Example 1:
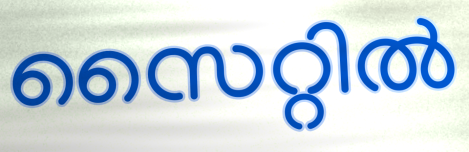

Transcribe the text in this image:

സൈറ്റിൽ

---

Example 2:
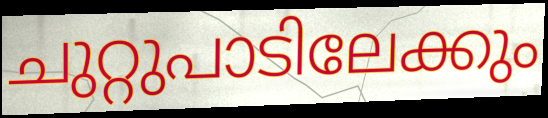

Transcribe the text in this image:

ചുറ്റുപാടിലേക്കും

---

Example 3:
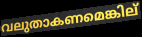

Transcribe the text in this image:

വലുതാകണമെങ്കില്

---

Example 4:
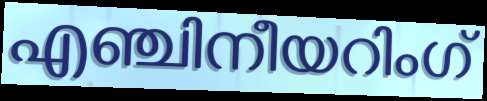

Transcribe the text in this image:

എഞ്ചിനീയറിംഗ്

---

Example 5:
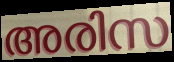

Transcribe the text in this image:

അരിസ